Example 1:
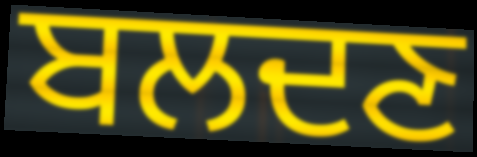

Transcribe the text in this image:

ਬਲਦਣ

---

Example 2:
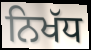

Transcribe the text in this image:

ਨਿਖੱਧ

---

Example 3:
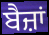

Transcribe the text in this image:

ਬੈਜ਼ਾਂ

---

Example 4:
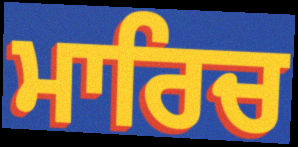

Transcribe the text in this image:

ਮਾਰਿਚ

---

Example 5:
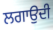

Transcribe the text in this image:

ਲਗਾਉਦੀ